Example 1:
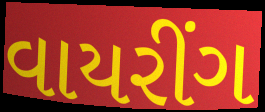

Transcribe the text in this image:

વાયરીંગ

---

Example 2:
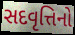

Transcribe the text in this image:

સદવૃત્તિનો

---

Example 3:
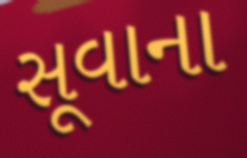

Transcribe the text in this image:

સૂવાના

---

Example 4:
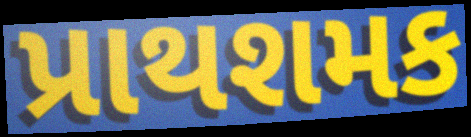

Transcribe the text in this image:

પ્રાથશમક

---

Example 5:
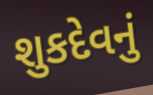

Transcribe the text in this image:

શુકદેવનું